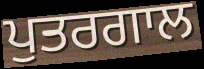
ਪੁਤਰਗਾਲ